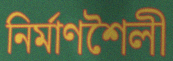
নির্মাণশৈলী